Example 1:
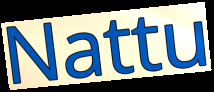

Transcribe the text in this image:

Nattu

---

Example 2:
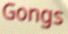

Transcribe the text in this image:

Gongs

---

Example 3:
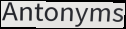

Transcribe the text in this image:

Antonyms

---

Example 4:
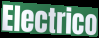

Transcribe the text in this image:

Electrico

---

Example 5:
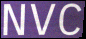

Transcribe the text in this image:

NVC